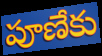
పూణేకు